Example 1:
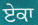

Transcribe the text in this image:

ਏਕਾ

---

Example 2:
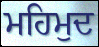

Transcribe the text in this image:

ਮਹਿਮੁਦ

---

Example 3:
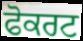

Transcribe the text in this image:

ਫੋਕਰਟ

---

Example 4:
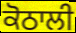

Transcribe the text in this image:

ਕੋਠਾਲੀ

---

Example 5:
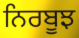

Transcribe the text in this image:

ਨਿਰਬੂਝ